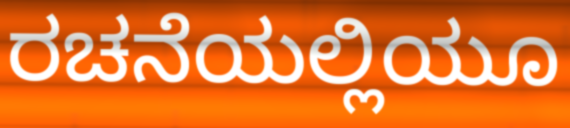
ರಚನೆಯಲ್ಲಿಯೂ